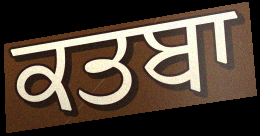
ਕਤਬਾ